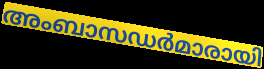
അംബാസഡർമാരായി